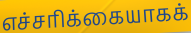
எச்சரிக்கையாகக்